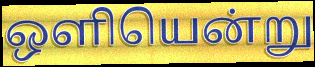
ஒளியென்று